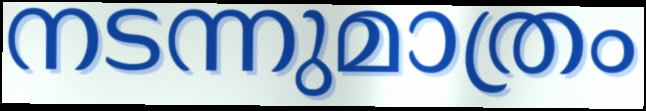
നടന്നുമാത്രം